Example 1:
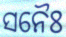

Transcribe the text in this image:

ସନୈଃ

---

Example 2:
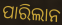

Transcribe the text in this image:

ପାରିଲାନ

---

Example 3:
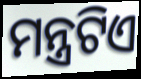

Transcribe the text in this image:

ମନ୍ତ୍ରଟିଏ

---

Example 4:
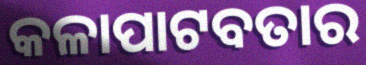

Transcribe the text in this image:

କଳାପାଟବତାର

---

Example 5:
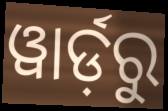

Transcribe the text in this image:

ୱାର୍ଡ଼ରୁ